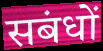
सबंधों